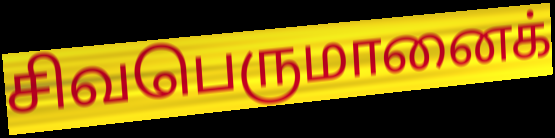
சிவபெருமானைக்